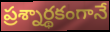
ప్రశ్నార్థకంగానే